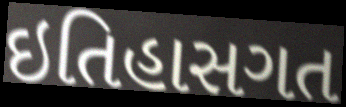
ઇતિહાસગત